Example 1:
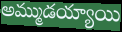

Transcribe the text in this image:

అమ్ముడయ్యాయి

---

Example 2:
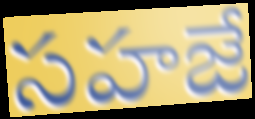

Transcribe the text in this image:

సహజే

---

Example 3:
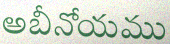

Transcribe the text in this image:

అబీనోయము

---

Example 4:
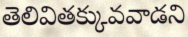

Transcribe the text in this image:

తెలివితక్కువవాడని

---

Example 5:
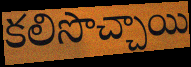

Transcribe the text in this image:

కలిసొచ్చాయి